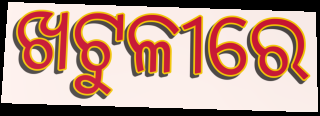
ଖଟୁଳୀରେ